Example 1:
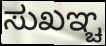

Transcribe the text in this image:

ಸುಖಞ್ಚ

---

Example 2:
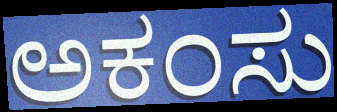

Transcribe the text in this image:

ಅಕಂಸು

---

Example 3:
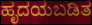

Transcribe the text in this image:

ಹೃದಯಬಡಿತ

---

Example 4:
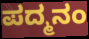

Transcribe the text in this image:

ಪದ್ಮನಂ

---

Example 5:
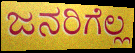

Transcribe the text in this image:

ಜನರಿಗೆಲ್ಲ